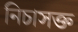
নিচাসক্ত